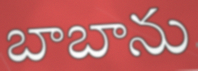
బాబాను